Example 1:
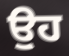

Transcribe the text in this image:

ਉੁਹ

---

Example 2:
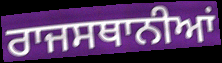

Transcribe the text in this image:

ਰਾਜਸਥਾਨੀਆਂ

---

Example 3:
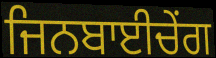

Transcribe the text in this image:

ਜਿਨਬਾਈਚੇਂਗ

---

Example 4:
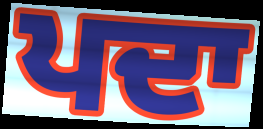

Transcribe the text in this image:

ਪਦਾ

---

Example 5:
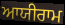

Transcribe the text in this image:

ਆਯੀਰਾਮ